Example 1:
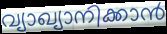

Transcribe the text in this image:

വ്യാഖ്യാനിക്കാൻ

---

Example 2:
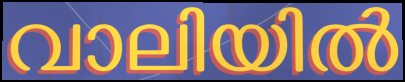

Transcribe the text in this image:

വാലിയിൽ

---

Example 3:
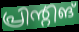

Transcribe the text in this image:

പ്രിന്റിങ്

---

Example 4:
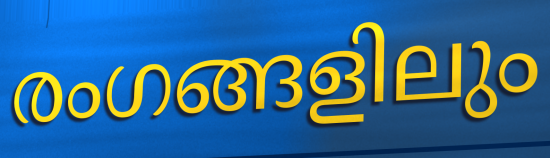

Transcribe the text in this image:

രംഗങ്ങളിലും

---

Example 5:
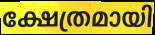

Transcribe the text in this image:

ക്ഷേത്രമായി